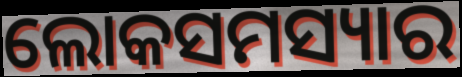
ଲୋକସମସ୍ୟାର